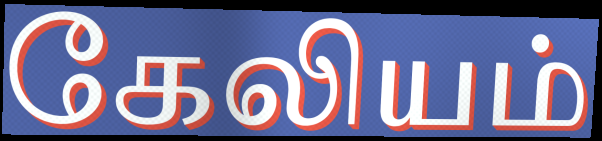
கேலியம்